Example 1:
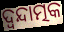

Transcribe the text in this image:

ଦ୍ଵନ୍ଦାତ୍ମକ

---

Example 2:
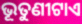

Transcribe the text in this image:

ଭୂତୁଣୀଟାଏ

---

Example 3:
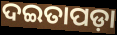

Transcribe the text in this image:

ଦଇତାପଡ଼ା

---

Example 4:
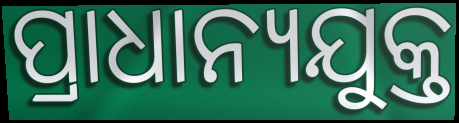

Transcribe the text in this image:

ପ୍ରାଧାନ୍ୟଯୁକ୍ତ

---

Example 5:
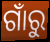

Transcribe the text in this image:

ଗାଁରୁ